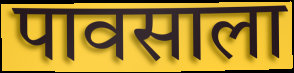
पावसाला